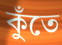
কুঁতে